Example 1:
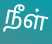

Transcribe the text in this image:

நீள்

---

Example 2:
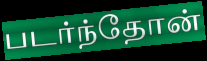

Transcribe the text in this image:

படர்ந்தோன்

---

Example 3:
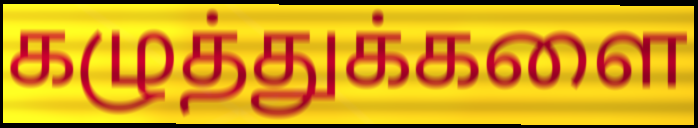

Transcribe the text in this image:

கழுத்துக்களை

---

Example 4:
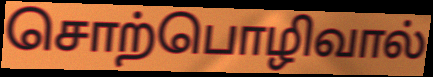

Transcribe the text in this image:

சொற்பொழிவால்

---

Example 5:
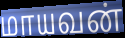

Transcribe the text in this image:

மாயவன்